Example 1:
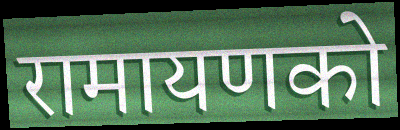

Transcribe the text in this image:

रामायणको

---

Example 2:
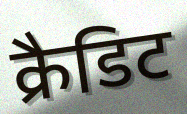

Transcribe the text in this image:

क्रैडिट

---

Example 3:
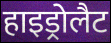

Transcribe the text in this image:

हाइड्रोलैट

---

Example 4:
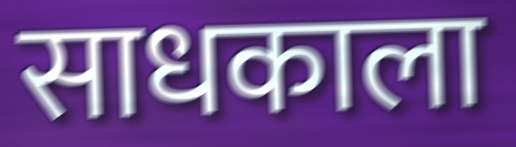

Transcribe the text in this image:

साधकाला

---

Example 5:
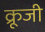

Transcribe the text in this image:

क्रूजी